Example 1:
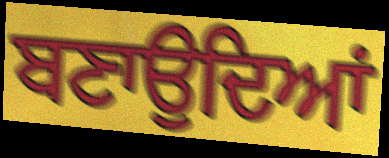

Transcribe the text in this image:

ਬਣਾਉਦਿਆਂ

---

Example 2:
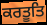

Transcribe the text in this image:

ਕਰਤੂਤਿ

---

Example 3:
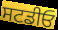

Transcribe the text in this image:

ਸਟਡੀਓ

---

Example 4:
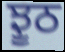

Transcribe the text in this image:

ਝੂਠ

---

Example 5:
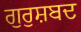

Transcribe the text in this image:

ਗੁਰੁਸ਼ਬਦ